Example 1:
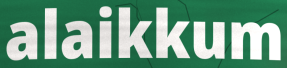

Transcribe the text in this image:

alaikkum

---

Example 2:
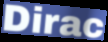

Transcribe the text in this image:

Dirac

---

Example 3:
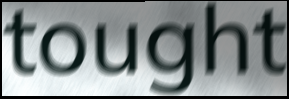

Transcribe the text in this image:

tought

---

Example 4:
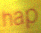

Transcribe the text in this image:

hap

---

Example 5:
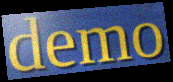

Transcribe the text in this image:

demo